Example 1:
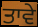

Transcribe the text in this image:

ਤਾਵੇ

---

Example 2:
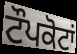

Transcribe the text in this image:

ਟੌਪਕੋਟਾਂ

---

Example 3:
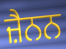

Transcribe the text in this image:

ਜ਼ੈਨਨ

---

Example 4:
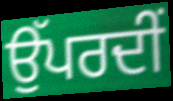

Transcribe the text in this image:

ਉੱਪਰਦੀਂ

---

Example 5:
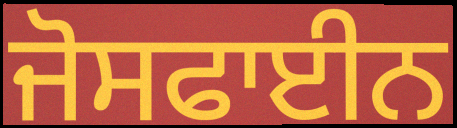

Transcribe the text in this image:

ਜੋਸਫਾਈਨ